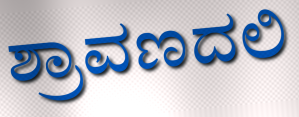
ಶ್ರಾವಣದಲಿ